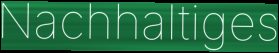
Nachhaltiges